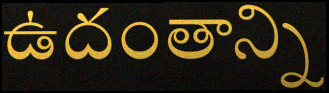
ఉదంతాన్ని